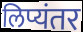
लिप्यंतर